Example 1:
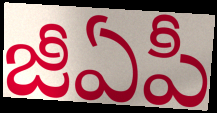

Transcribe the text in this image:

జీఏపీ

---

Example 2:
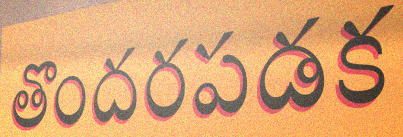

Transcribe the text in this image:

తొందరపడక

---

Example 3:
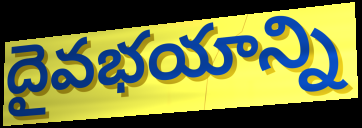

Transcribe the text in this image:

దైవభయాన్ని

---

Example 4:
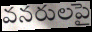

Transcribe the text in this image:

వనరులపై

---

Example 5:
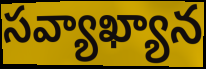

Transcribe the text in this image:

సవ్యాఖ్యాన